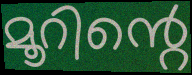
മൂറിന്റെ